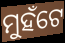
ମୁହଁଟେ